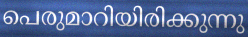
പെരുമാറിയിരിക്കുന്നു